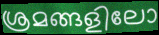
ശ്രമങ്ങളിലോ